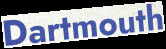
Dartmouth